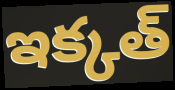
ఇక్కత్